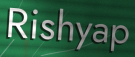
Rishyap